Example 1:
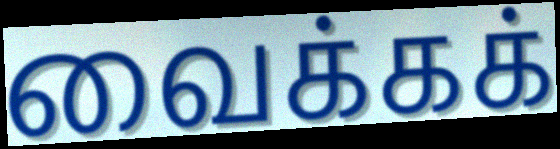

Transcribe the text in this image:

வைக்கக்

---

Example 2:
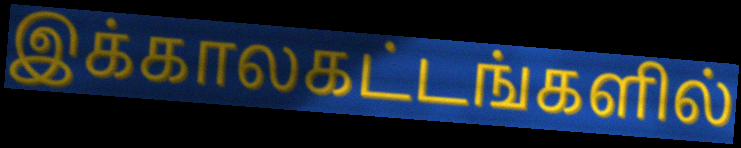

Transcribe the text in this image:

இக்காலகட்டங்களில்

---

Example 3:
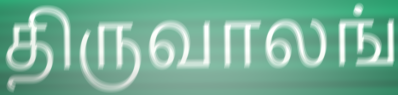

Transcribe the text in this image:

திருவாலங்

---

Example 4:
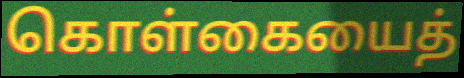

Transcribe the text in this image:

கொள்கையைத்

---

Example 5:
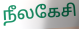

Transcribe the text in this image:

நீலகேசி